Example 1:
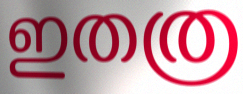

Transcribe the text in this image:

ഇതത്ര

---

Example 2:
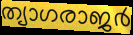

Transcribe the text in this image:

ത്യാഗരാജർ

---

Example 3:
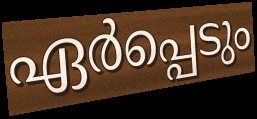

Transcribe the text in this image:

ഏർപ്പെടും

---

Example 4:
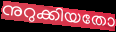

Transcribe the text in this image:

നുറുക്കിയതോ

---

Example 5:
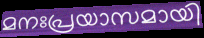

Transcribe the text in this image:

മനഃപ്രയാസമായി